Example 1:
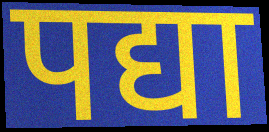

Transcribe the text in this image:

पद्या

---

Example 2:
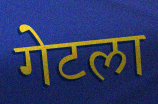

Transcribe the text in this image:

गेटला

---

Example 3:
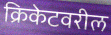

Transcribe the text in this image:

क्रिकेटवरील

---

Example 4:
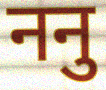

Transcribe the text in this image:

ननु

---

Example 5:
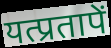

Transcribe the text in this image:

यत्प्रतापें